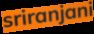
sriranjani